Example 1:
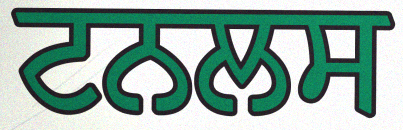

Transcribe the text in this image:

ਟਨਲਸ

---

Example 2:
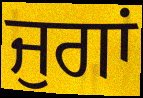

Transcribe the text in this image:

ਜੁਗਾਂ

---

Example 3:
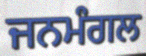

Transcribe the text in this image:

ਜਨਮੰਗਲ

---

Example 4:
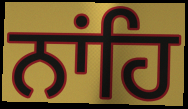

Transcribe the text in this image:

ਨਾਂਹਿ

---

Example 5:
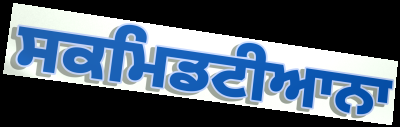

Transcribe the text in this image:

ਸਕਮਿਡਟੀਆਨਾ